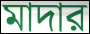
মাদার